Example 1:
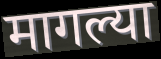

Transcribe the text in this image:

मागल्या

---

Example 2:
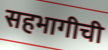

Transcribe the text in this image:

सहभागीची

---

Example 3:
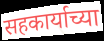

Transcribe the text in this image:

सहकार्याच्या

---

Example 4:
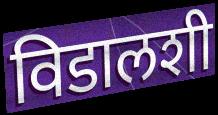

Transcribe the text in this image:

विडालशी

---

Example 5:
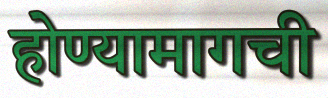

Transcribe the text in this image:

होण्यामागची